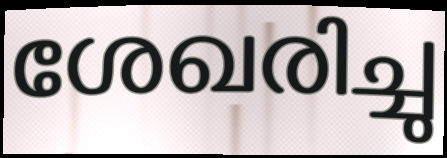
ശേഖരിച്ചു